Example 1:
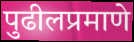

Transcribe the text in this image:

पुढीलप्रमाणे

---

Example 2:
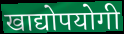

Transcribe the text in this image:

खाद्योपयोगी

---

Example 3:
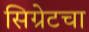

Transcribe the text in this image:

सिग्रेटचा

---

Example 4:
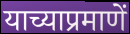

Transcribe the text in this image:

याच्याप्रमाणें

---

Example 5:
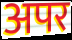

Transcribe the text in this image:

अपर